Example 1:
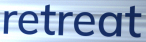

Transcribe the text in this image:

retreat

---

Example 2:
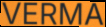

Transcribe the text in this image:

VERMA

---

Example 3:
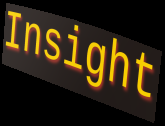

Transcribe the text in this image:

Insight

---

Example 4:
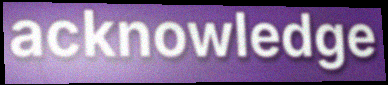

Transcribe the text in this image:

acknowledge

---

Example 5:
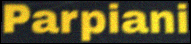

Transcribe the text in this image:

Parpiani